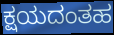
ಕ್ಷಯದಂತಹ